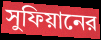
সুফিয়ানের